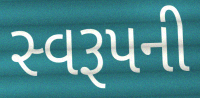
સ્વરૂપની